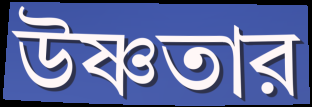
উষ্ণতার